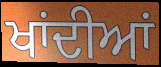
ਖਾਂਦੀਆਂ